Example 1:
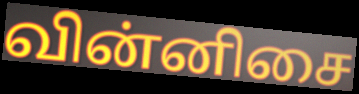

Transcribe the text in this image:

வின்னிசை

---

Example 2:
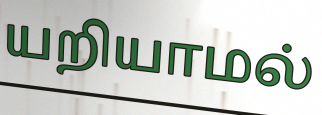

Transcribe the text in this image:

யறியாமல்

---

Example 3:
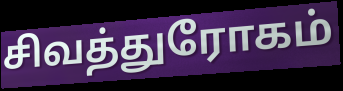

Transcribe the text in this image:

சிவத்துரோகம்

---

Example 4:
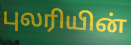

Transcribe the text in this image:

புலரியின்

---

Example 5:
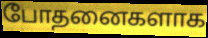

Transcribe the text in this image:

போதனைகளாக